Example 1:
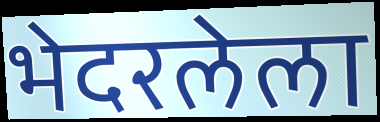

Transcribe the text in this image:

भेदरलेला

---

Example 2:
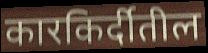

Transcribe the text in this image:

कारकिर्दीतील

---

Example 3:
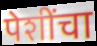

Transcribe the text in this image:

पेशींचा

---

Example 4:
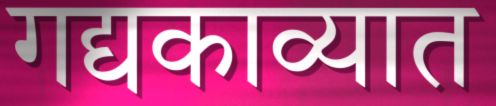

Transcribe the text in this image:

गद्यकाव्यात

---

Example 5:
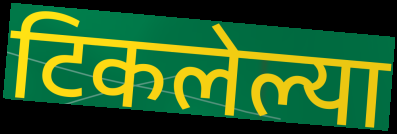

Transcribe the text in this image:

टिकलेल्या